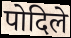
पोदिले